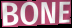
BONE